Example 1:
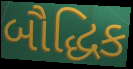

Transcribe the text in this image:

બૌદ્ધિક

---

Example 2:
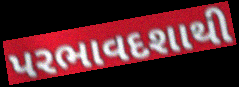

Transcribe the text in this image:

પરભાવદશાથી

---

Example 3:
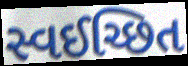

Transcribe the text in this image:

સ્વઈચ્છિત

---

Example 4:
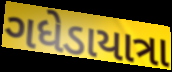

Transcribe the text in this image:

ગધેડાયાત્રા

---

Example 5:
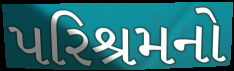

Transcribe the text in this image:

પરિશ્રમનો